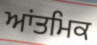
ਆਂਤਮਿਕ